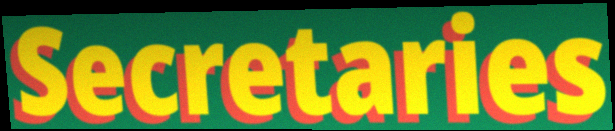
Secretaries